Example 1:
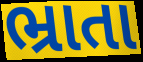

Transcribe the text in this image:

ભ્રાતા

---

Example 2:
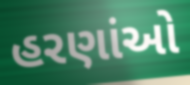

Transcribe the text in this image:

હરણાંઓ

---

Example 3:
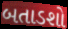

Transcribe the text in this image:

બતાડશો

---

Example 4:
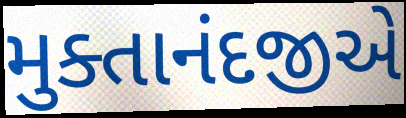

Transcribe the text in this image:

મુક્તાનંદજીએ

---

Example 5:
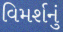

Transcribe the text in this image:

વિમર્શનું